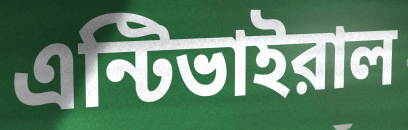
এন্টিভাইরাল